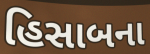
હિસાબના